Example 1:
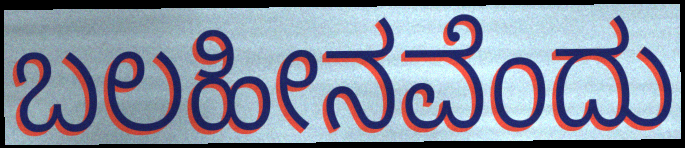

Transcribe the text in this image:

ಬಲಹೀನವೆಂದು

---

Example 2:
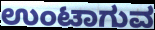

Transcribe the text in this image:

ಉಂಟಾಗುವ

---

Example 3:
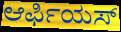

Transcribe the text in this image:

ಆರ್ಫಿಯಸ್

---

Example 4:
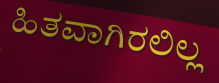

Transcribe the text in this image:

ಹಿತವಾಗಿರಲಿಲ್ಲ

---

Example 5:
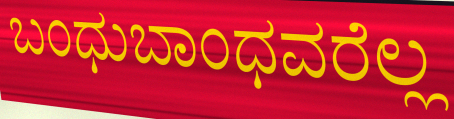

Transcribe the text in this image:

ಬಂಧುಬಾಂಧವರೆಲ್ಲ